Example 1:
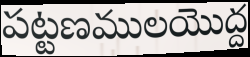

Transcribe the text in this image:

పట్టణములయొద్ద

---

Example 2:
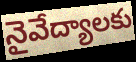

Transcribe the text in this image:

నైవేద్యాలకు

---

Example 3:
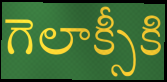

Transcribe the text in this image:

గెలాక్సీకి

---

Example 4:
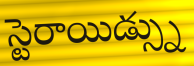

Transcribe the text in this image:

స్టెరాయిడ్స్ను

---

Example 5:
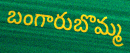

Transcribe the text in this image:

బంగారుబొమ్మ